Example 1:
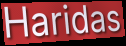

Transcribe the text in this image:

Haridas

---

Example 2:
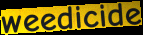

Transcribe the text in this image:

weedicide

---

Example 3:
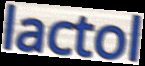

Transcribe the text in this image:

lactol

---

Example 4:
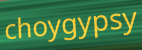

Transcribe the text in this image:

choygypsy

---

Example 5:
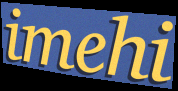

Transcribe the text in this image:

imehi